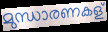
മുന്ധാരണകള്